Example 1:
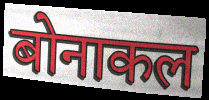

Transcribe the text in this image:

बोनाकल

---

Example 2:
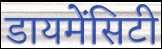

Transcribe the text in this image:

डायमेंसिटी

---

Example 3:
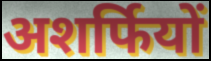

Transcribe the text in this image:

अशर्फियों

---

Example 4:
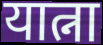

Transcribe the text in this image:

यात्ना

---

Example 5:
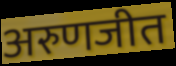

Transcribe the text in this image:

अरुणजीत